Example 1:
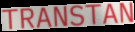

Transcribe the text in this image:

TRANSTAN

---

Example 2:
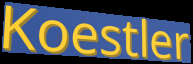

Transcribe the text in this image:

Koestler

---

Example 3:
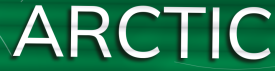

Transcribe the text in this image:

ARCTIC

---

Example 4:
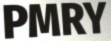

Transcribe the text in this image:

PMRY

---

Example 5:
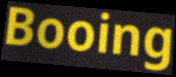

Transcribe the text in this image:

Booing